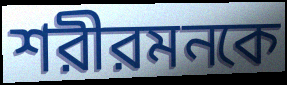
শরীরমনকে